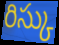
రిస్కు